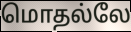
மொதல்லே